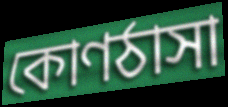
কোণঠাসা